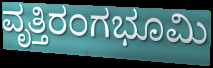
ವೃತ್ತಿರಂಗಭೂಮಿ